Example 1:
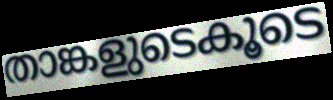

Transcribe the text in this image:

താങ്കളുടെകൂടെ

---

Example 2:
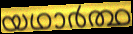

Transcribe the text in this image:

യഥാർത്ഥ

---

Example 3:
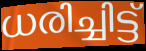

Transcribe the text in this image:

ധരിച്ചിട്ട്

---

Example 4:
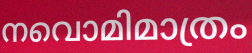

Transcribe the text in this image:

നവൊമിമാത്രം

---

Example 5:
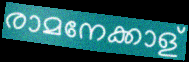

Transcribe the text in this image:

രാമനേക്കാള്